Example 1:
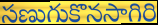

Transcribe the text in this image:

సణుగుకొనసాగిరి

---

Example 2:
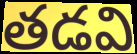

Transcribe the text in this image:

తడవి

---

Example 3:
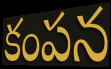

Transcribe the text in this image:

కంపన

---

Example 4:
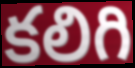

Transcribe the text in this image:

కలిగి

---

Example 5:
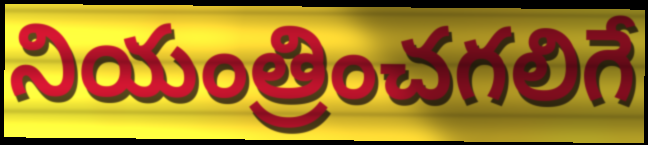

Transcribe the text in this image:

నియంత్రించగలిగే